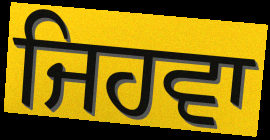
ਜਿਹਵਾ